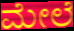
ಮೇಲೆ